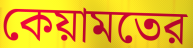
কেয়ামতের